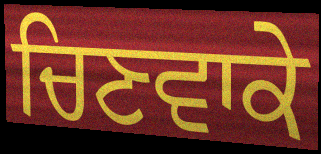
ਚਿਣਵਾਕੇ